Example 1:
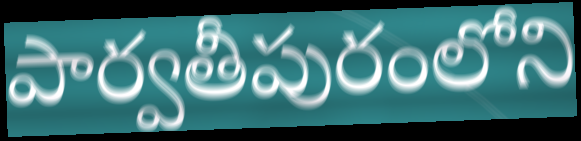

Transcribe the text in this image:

పార్వతీపురంలోని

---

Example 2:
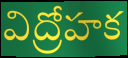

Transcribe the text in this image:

విద్రోహక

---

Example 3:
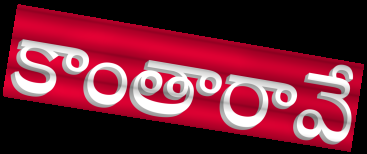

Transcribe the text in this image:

కాంతారావే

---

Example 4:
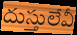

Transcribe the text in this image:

దుస్తులేవీ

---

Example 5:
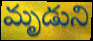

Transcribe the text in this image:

మృడుని